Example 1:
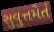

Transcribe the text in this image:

સુવુત્તમેતં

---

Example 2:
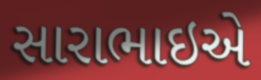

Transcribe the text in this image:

સારાભાઇએ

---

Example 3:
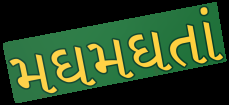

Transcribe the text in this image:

મઘમઘતાં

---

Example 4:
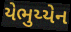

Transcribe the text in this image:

યેભુય્યેન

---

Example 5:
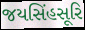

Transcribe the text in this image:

જયસિંહસૂરિ